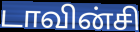
டாவின்சி